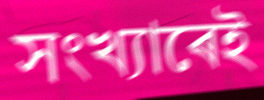
সংখ্যাৰেই